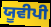
ਯੂਵੀਪੀ